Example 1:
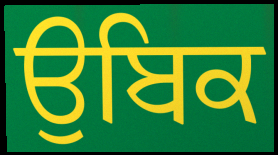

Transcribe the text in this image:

ਉਬਿਕ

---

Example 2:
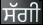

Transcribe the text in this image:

ਸੱਗੀ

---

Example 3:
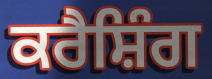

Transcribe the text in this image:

ਕਰੈਸ਼ਿੰਗ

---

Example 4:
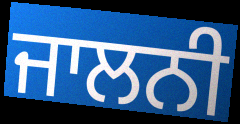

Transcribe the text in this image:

ਜਾਲਨੀ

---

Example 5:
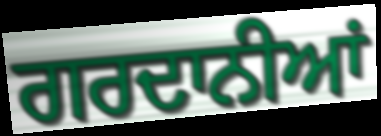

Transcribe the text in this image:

ਗਰਦਾਨੀਆਂ